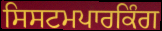
ਸਿਸਟਮਪਾਰਕਿੰਗ